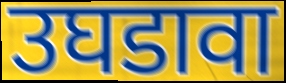
उघडावा